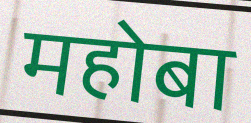
महोबा